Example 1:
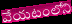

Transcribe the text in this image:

వేయటంలోని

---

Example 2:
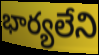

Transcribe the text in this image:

భార్యలేని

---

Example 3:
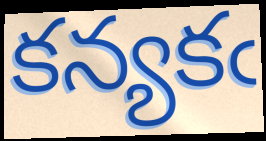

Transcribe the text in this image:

కన్యకఁ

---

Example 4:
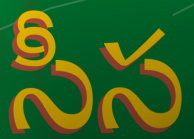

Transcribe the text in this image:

సీస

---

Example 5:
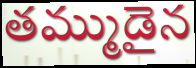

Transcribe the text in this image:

తమ్ముడైన